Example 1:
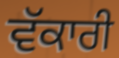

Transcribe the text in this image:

ਵੱਕਾਰੀ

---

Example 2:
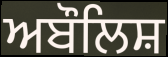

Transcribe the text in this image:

ਅਬੌਲਿਸ਼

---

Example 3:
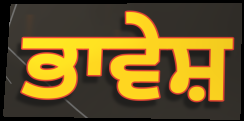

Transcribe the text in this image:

ਭਾਵੇਸ਼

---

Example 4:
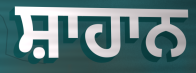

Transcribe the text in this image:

ਸ਼ਾਹਾਨ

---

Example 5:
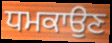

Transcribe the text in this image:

ਧਮਕਾਉਣ